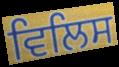
ਵਿਲਿਸ